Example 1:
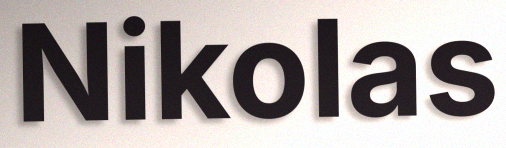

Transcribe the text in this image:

Nikolas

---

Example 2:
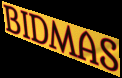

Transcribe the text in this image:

BIDMAS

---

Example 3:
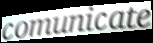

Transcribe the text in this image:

comunicate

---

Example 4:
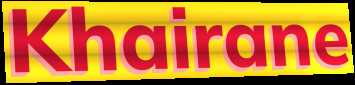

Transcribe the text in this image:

Khairane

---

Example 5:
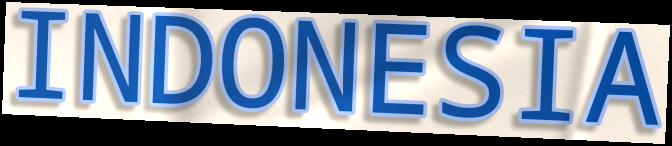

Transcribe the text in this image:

INDONESIA